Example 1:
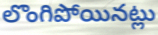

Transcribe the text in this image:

లొంగిపోయినట్లు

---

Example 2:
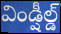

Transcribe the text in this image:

విండ్షీల్డ్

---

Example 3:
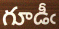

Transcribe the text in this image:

గూడీఁ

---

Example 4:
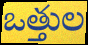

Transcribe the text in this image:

ఒత్తుల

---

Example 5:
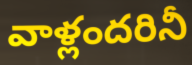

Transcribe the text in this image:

వాళ్లందరినీ